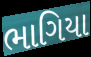
ભાગિયા